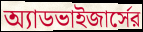
অ্যাডভাইজার্সের